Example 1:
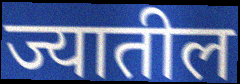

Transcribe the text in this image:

ज्यातील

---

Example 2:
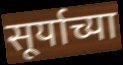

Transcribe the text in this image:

सूर्याच्या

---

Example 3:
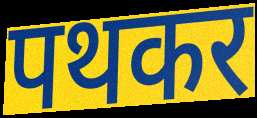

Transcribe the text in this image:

पथकर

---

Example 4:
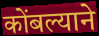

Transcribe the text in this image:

कोंबल्याने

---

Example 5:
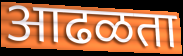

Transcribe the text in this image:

आढळता